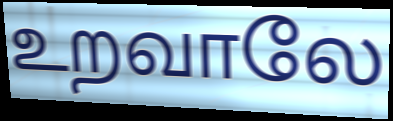
உறவாலே